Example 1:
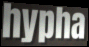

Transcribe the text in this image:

hypha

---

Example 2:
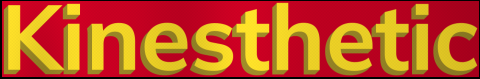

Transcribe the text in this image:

Kinesthetic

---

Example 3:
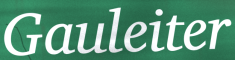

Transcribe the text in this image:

Gauleiter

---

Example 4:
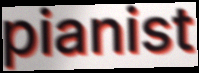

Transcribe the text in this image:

pianist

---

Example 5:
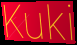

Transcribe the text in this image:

Kuki